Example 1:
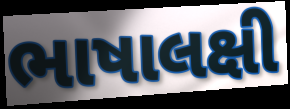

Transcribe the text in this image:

ભાષાલક્ષી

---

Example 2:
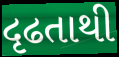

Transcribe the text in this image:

દૃઢતાથી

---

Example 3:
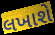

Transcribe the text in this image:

લખાશે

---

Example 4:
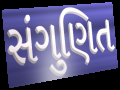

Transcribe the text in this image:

સંગુણિત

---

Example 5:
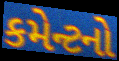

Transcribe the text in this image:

કમેન્ટનો